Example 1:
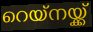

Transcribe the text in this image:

റെയ്നയ്ക്ക്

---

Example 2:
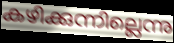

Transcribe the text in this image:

കഴിക്കുന്നില്ലെന്നു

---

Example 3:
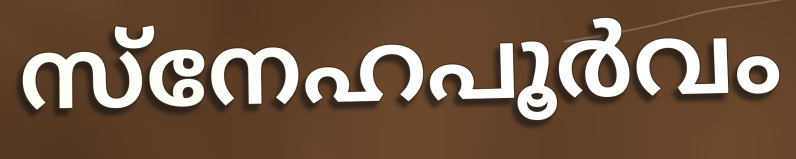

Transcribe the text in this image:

സ്നേഹപൂർവം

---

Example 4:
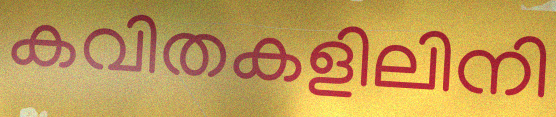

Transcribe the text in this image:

കവിതകളിലിനി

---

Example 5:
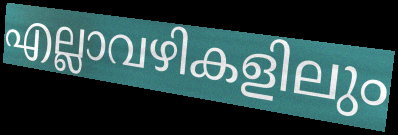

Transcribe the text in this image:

എല്ലാവഴികളിലും